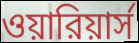
ওয়ারিয়ার্স